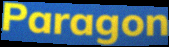
Paragon